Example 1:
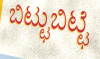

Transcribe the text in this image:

ಬಿಟ್ಟುಬಿಟ್ಟೆ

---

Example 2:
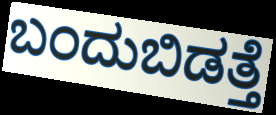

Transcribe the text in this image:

ಬಂದುಬಿಡತ್ತೆ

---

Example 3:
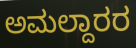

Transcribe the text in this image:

ಅಮಲ್ದಾರರ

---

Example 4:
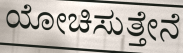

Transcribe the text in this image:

ಯೋಚಿಸುತ್ತೇನೆ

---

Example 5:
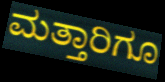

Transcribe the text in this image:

ಮತ್ತಾರಿಗೂ